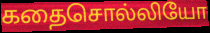
கதைசொல்லியோ